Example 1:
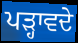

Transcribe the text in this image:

ਪੜ੍ਹਾਵਦੇ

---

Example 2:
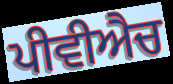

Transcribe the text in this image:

ਪੀਵੀਐਚ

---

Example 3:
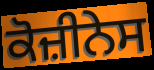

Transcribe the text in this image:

ਕੋਜ਼ੀਨੇਸ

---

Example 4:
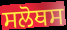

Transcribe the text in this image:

ਸਲੋਥਸ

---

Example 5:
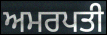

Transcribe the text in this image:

ਅਮਰਪਤੀ